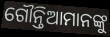
ଗୌନ୍ତିଆମାନଙ୍କୁ